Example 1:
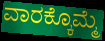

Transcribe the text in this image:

ವಾರಕ್ಕೊಮ್ಮೆ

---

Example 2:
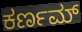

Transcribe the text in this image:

ಕರ್ಣಮ್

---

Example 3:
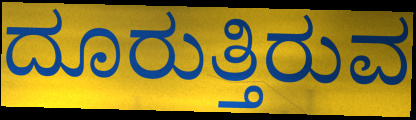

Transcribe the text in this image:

ದೂರುತ್ತಿರುವ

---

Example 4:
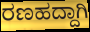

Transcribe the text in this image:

ರಣಹದ್ದಾಗಿ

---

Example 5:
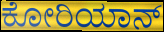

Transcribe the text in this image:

ಕೋರಿಯಾನ್